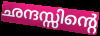
ഛന്ദസ്സിന്റെ